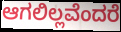
ಆಗಲಿಲ್ಲವೆಂದರೆ